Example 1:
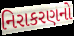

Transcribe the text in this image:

નિરાકરણનો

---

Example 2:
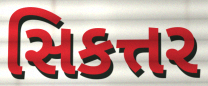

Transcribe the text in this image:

સિકત્તર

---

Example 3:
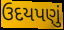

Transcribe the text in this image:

ઉદયપણું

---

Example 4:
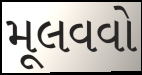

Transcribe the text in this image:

મૂલવવો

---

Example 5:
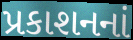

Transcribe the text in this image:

પ્રકાશનનાં